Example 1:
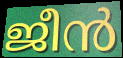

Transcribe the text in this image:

ജീൻ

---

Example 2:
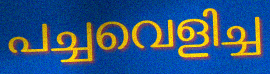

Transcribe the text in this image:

പച്ചവെളിച്ച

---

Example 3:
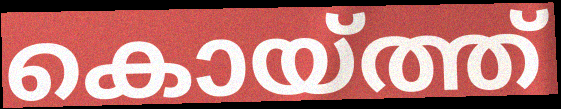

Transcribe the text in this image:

കൊയ്ത്ത്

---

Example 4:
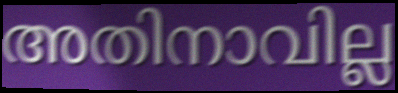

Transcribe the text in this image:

അതിനാവില്ല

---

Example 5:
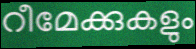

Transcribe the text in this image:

റീമേക്കുകളും